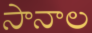
సానాల